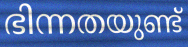
ഭിന്നതയുണ്ട്